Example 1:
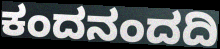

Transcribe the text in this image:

ಕಂದನಂದದಿ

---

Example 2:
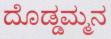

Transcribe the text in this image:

ದೊಡ್ಡಮ್ಮನ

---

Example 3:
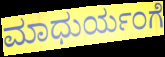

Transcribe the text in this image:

ಮಾಧುರ್ಯಂಗೆ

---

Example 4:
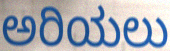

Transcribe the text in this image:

ಅರಿಯಲು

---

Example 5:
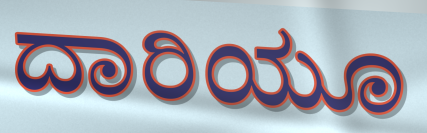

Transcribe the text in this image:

ದಾರಿಯೂ